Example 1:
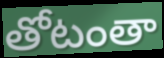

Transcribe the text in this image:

తోటంతా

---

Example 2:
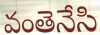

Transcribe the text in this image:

వంతెనేసి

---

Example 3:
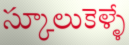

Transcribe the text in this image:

స్కూలుకెళ్ళే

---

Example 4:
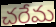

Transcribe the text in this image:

చరేమ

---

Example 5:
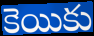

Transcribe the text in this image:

కెయికు